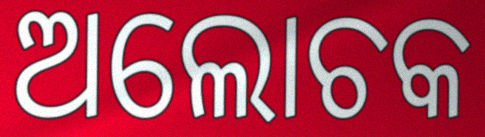
ଅଲୋଚକ